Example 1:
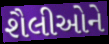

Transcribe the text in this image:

શૈલીઓને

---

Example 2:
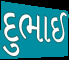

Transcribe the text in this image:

દુભાઈ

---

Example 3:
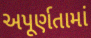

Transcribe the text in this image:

અપૂર્ણતામાં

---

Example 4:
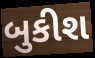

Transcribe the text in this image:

બુકીશ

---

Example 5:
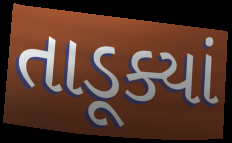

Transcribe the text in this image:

તાડૂક્યાં